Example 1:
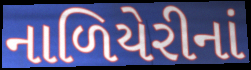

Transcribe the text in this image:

નાળિયેરીનાં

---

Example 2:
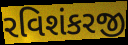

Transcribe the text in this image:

રવિશંકરજી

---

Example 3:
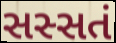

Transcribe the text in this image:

સસ્સતં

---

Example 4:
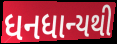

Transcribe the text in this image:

ધનધાન્યથી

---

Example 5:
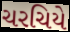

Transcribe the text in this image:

ચરચિયે